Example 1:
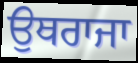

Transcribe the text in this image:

ਉਥਰਾਜਾ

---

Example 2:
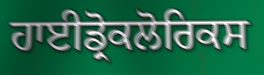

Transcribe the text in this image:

ਹਾਈਡ੍ਰੋਕਲੋਰਿਕਸ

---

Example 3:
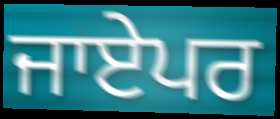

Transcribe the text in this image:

ਜਾਏਪਰ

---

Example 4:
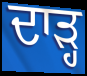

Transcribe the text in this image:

ਦਾੜ੍ਹ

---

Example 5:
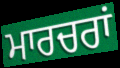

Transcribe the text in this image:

ਮਾਰਚਰਾਂ